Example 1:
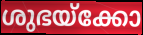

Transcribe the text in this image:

ശുഭയ്ക്കോ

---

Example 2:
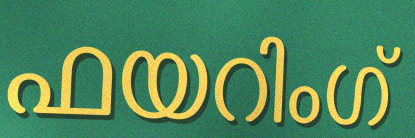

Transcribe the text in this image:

ഫയറിംഗ്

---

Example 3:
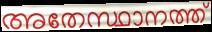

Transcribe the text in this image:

അതേസ്ഥാനത്ത്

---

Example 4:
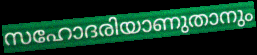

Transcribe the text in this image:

സഹോദരിയാണുതാനും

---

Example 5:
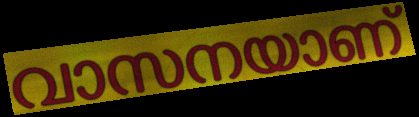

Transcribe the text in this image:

വാസനയാണ്